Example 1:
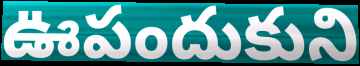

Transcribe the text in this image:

ఊపందుకుని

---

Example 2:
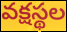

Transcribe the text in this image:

వక్షస్థల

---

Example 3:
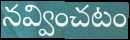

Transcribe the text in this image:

నవ్వించటం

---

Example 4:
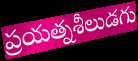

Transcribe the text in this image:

ప్రయత్నశీలుడగు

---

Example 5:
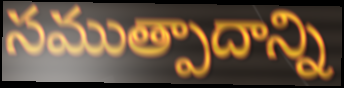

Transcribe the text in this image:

సముత్పాదాన్ని